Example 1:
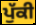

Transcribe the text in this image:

ਪੁੱਕੀ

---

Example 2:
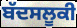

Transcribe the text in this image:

ਬੱਦਸਲੂਕੀ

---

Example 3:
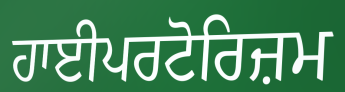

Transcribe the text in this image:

ਹਾਈਪਰਟੋਰਿਜ਼ਮ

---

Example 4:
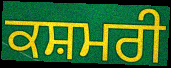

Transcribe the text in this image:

ਕਸ਼ਮਰੀ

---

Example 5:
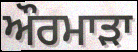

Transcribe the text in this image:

ਔਰਮਾੜਾ